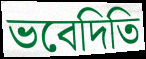
ভবেদিতি